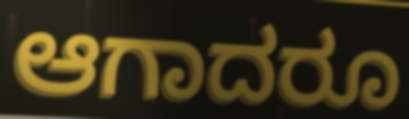
ಆಗಾದರೂ